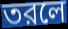
তরলে